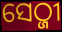
ସେଠ୍ଜୀ